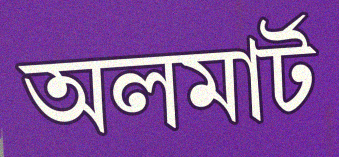
অলমার্ট